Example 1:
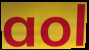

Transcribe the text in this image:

aol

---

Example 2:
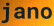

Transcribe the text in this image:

jano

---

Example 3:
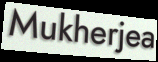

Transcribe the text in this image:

Mukherjea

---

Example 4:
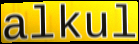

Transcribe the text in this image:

alkul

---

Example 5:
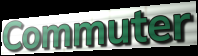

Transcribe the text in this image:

Commuter